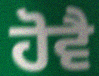
ਹੋਵੈ